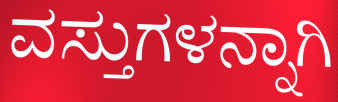
ವಸ್ತುಗಳನ್ನಾಗಿ